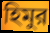
হিমুর